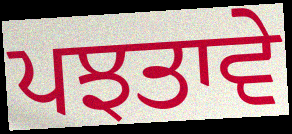
ਪਝਤਾਵੇ